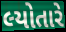
લ્યોતારે